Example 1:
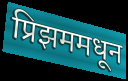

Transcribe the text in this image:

प्रिझममधून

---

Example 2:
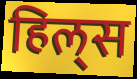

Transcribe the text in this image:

हिल्स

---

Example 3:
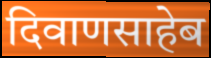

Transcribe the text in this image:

दिवाणसाहेब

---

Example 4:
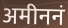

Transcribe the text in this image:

अमीननं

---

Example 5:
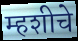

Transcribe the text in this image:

म्हशीचे